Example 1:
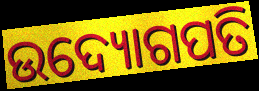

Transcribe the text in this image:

ଉଦ୍ୟୋଗପତି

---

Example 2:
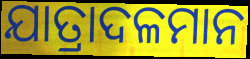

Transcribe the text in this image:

ଯାତ୍ରାଦଳମାନ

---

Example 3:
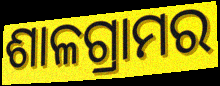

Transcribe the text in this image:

ଶାଳଗ୍ରାମର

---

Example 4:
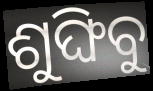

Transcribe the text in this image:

ଶୁଙ୍ଘିବୁ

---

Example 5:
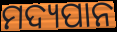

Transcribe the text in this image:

ମଦ୍ୟପାନ